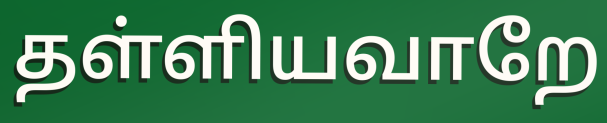
தள்ளியவாறே